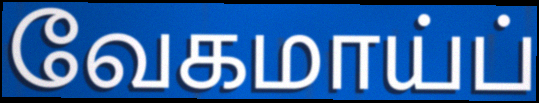
வேகமாய்ப்